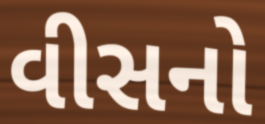
વીસનો